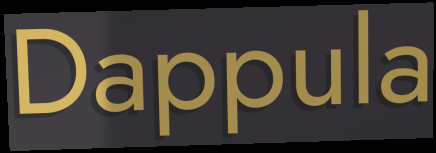
Dappula